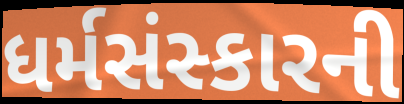
ધર્મસંસ્કારની